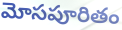
మోసపూరితం